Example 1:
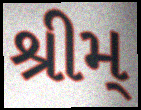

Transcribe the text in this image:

શ્રીમ્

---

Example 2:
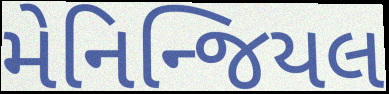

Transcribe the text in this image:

મેનિન્જિયલ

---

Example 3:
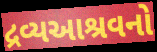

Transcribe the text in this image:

દ્રવ્યઆશ્રવનો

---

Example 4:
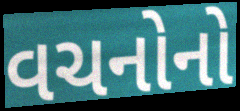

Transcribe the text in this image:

વચનોનો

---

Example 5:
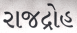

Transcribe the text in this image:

રાજદ્રોહ